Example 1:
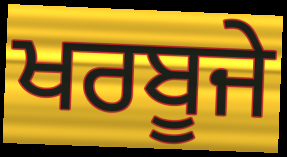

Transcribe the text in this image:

ਖਰਬੂਜੇ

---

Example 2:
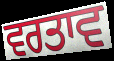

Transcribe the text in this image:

ਵਰਤਾਵ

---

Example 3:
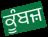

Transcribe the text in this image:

ਕੂੰਬਜ਼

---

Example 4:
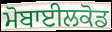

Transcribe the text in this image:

ਮੋਬਾਈਲਕੋਡ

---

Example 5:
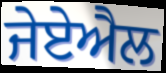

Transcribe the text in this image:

ਜੇਏਐਲ